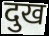
दुख